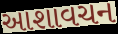
આશાવચન